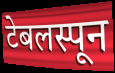
टेबलस्पून